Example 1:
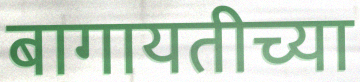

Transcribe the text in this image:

बागायतीच्या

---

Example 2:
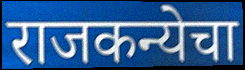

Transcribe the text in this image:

राजकन्येचा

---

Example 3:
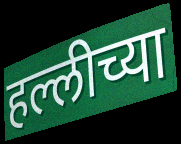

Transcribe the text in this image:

हल्लीच्या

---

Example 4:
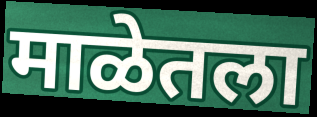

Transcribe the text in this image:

माळेतला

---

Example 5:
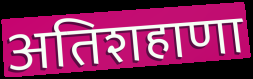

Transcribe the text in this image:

अतिशहाणा